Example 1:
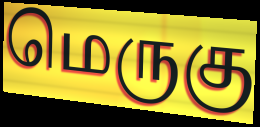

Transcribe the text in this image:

மெருகு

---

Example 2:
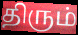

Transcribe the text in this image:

திரும்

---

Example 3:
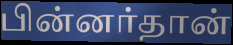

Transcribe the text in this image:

பின்னர்தான்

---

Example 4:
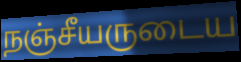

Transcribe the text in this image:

நஞ்சீயருடைய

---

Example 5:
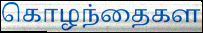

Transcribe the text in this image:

கொழந்தைகள